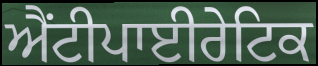
ਐਂਟੀਪਾਈਰੇਟਿਕ